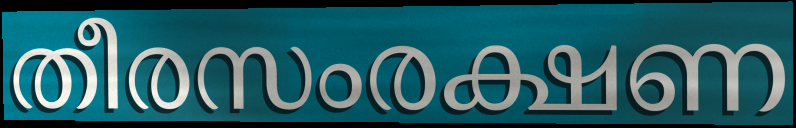
തീരസംരക്ഷണ